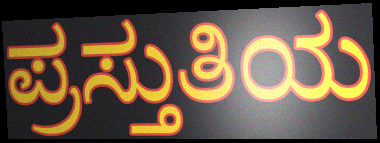
ಪ್ರಸ್ತುತಿಯ